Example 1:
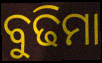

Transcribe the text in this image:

ବୁଢିମା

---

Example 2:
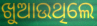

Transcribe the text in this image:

ଖୁଆଉଥିଲେ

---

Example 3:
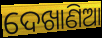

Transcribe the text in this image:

ଦେଖାଣିଆ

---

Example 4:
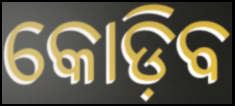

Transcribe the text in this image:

କୋଡ଼ିବ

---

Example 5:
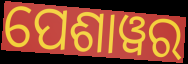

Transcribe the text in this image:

ପେଶାୱର